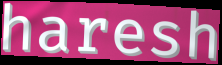
haresh